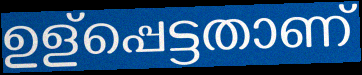
ഉള്പ്പെട്ടതാണ്